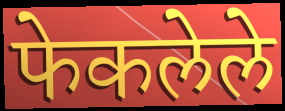
फेकलेले